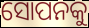
ସୋପନକୁ